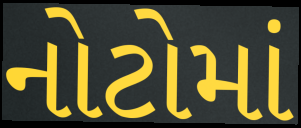
નોટોમાં